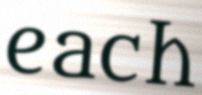
each